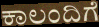
ಕಾಲಂದಿಗೆ